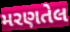
મરણતેલ